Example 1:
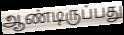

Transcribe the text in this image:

ஆண்டிருப்பது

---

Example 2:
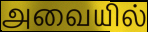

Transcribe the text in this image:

அவையில்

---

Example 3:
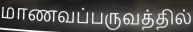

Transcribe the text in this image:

மாணவப்பருவத்தில்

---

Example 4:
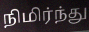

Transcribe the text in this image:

நிமிர்ந்து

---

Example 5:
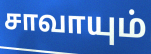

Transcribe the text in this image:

சாவாயும்